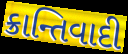
ક્રાન્તિવાદી